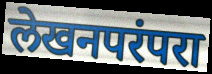
लेखनपरंपरा